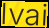
Ivai